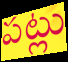
పట్లు